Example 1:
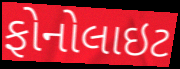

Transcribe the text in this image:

ફોનોલાઇટ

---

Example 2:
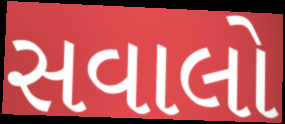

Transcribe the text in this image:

સવાલો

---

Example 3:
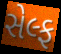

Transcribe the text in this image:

સેલ્ફ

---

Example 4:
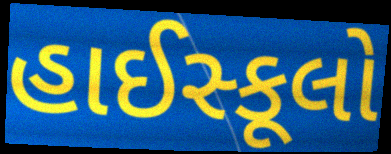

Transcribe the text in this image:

હાઈસ્કૂલો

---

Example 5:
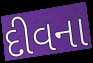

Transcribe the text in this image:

દીવના